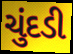
ચુંદડી